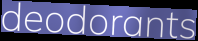
deodorants